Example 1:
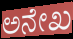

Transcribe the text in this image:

ಅನೇಖ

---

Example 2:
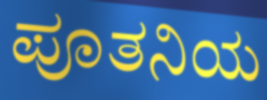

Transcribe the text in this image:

ಪೂತನಿಯ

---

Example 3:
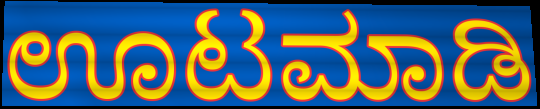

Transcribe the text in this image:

ಊಟಮಾಡಿ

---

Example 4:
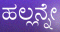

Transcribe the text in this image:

ಹಲ್ಲನ್ನೇ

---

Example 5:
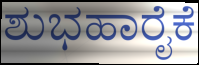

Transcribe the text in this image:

ಶುಭಹಾರೈಕೆ